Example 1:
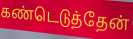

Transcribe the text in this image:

கண்டெடுத்தேன்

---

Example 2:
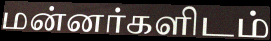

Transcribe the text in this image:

மன்னர்களிடம்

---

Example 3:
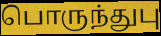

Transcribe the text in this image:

பொருந்துபு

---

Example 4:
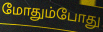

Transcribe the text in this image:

மோதும்போது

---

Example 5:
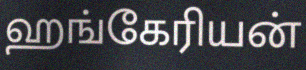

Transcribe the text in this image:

ஹங்கேரியன்